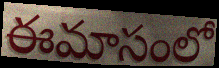
ఈమాసంలో